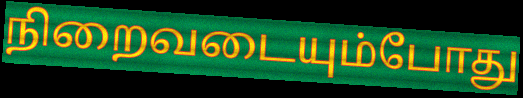
நிறைவடையும்போது